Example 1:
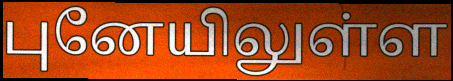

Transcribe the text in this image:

புனேயிலுள்ள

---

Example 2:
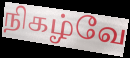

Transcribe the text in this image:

நிகழ்வே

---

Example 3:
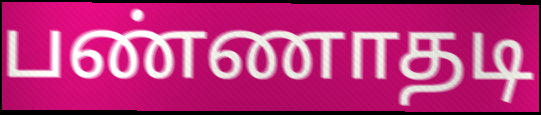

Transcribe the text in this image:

பண்ணாதடி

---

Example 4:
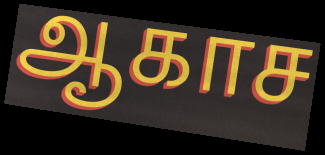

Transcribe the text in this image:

ஆகாச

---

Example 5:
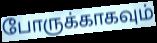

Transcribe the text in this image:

போருக்காகவும்